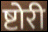
ष्टोरी